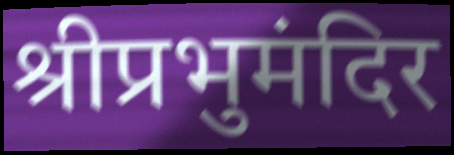
श्रीप्रभुमंदिर